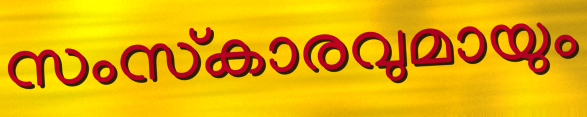
സംസ്‌കാരവുമായും